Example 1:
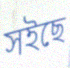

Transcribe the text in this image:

সইছে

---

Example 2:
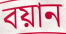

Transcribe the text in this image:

বয়ান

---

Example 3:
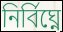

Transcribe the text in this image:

নির্বিঘ্নে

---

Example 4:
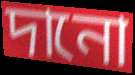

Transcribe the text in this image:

দানো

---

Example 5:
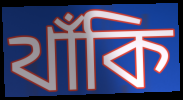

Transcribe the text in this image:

থাঁকি